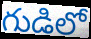
గుడిలో